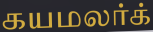
கயமலர்க்